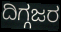
ದಿಗ್ಗಜರ